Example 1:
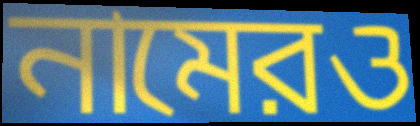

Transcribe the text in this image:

নামেরও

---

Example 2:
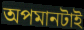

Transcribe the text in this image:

অপমানটাই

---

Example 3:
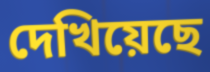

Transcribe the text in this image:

দেখিয়েছে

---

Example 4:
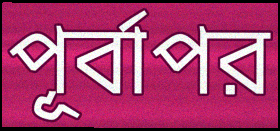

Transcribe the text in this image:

পূর্বাপর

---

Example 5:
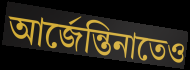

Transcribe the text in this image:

আর্জেন্তিনাতেও